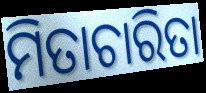
ମିତାଚାରିତା